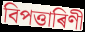
বিপত্তাৰিণী